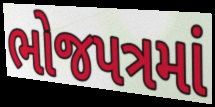
ભોજપત્રમાં